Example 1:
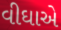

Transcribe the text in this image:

વીઘાએ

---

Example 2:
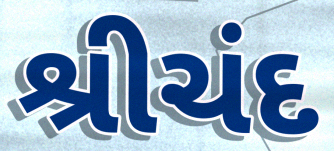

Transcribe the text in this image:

શ્રીચંદ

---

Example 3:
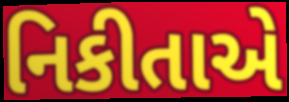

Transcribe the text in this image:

નિકીતાએ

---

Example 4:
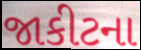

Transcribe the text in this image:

જાકીટના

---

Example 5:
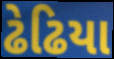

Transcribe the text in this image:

ઢેઢિયા